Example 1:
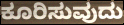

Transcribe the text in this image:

ಕೂರಿಸುವುದು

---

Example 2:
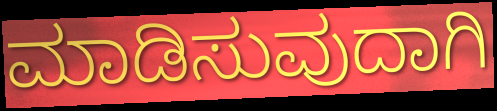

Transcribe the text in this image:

ಮಾಡಿಸುವುದಾಗಿ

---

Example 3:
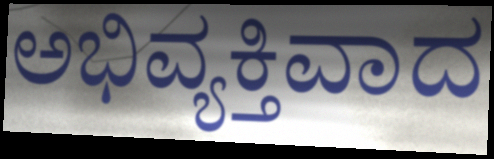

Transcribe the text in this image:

ಅಭಿವ್ಯಕ್ತಿವಾದ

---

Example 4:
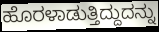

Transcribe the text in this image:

ಹೊರಳಾಡುತ್ತಿದ್ದುದನ್ನು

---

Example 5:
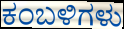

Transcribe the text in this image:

ಕಂಬಳಿಗಳು